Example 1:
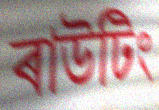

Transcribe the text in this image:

ৰাউটিং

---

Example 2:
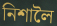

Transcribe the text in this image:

নিশালৈ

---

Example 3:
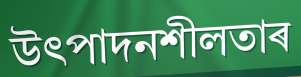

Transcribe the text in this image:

উৎপাদনশীলতাৰ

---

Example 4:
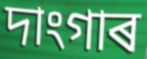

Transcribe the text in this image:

দাংগাৰ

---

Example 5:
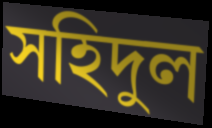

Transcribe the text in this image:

সহিদুল